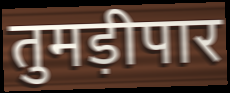
तुमड़ीपार